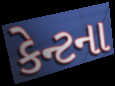
કેન્ટના